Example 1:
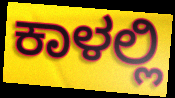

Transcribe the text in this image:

ಕಾಳಲ್ಲಿ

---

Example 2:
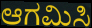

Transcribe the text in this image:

ಆಗಮಿಸಿ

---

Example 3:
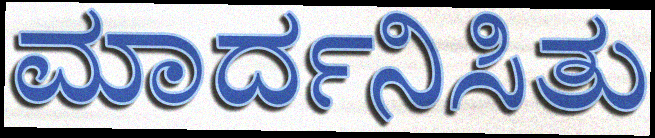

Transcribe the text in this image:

ಮಾರ್ದನಿಸಿತು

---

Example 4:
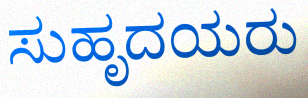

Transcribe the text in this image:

ಸುಹೃದಯರು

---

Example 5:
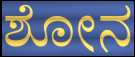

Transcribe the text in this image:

ಶೋನ